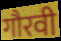
गौरवी